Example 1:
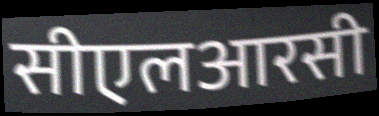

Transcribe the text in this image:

सीएलआरसी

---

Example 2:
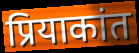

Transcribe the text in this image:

प्रियाकांत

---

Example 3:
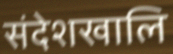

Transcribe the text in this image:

संदेशखालि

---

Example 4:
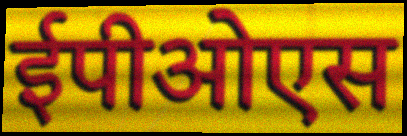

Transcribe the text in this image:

ईपीओएस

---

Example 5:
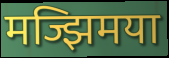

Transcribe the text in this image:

मज्झिमया